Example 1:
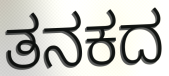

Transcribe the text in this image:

ತನಕದ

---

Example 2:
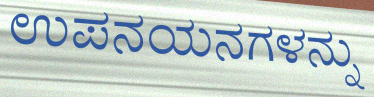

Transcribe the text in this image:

ಉಪನಯನಗಳನ್ನು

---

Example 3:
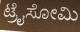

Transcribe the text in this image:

ಟ್ರೈಸೋಮಿ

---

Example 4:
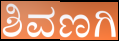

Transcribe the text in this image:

ಶಿವಣಗಿ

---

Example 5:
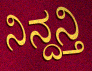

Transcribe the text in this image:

ನಿನ್ದನ್ತಿ